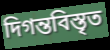
দিগন্তবিস্তৃত